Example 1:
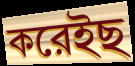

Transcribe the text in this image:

করেইছ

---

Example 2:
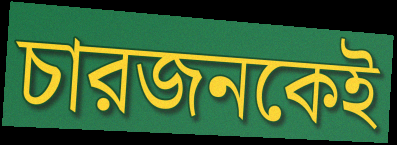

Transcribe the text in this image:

চারজনকেই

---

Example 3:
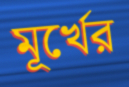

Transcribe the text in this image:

মূর্খের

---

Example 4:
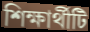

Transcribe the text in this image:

শিক্ষার্থীটি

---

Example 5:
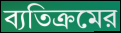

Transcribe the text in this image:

ব্যতিক্রমের